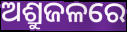
ଅଶ୍ରୁଜଳରେ